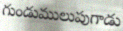
గుండుములుపుగాడు